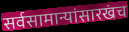
सर्वसामान्यांसारखंच